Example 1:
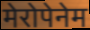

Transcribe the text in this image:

मेरोपेनेम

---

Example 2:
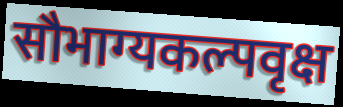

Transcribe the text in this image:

सौभाग्यकल्पवृक्ष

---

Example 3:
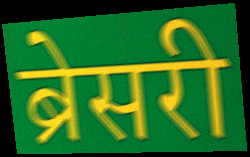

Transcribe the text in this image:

ब्रेसरी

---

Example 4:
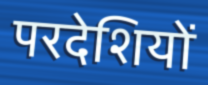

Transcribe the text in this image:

परदेशियों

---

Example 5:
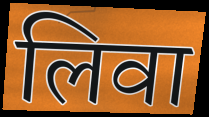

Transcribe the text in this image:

लिवा